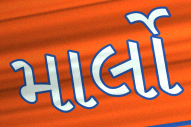
માર્લો